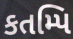
કતમ્પિ